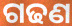
ଗଢଣ